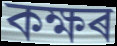
কক্ষৰ